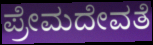
ಪ್ರೇಮದೇವತೆ